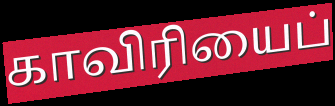
காவிரியைப்